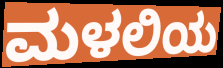
ಮಳಲಿಯ